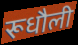
रूधौली